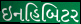
ઇનહિબિટર